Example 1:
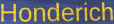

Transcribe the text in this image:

Honderich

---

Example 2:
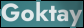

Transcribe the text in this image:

Goktay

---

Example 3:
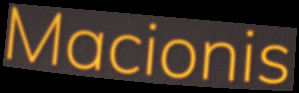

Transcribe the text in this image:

Macionis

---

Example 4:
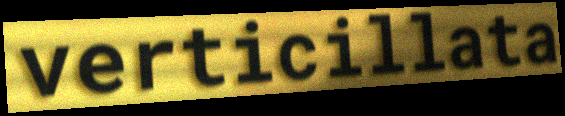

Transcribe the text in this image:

verticillata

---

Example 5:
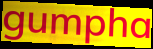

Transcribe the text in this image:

gumpha